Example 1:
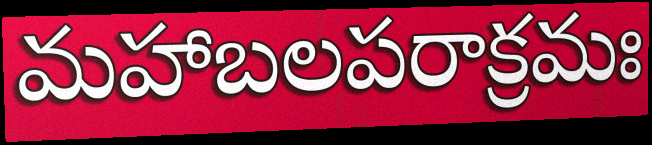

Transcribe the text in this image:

మహాబలపరాక్రమః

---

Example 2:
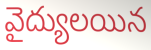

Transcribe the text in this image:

వైద్యులయిన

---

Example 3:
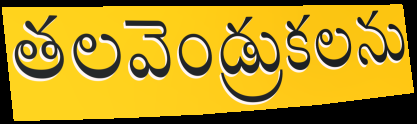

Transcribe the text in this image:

తలవెండ్రుకలను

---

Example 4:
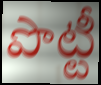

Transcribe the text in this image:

పొట్టీ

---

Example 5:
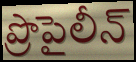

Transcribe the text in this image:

ప్రొపైలీన్